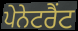
ਪੇਨੇਟਰੈਂਟ